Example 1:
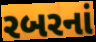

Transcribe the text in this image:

રબરનાં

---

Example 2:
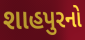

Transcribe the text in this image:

શાહપુરનો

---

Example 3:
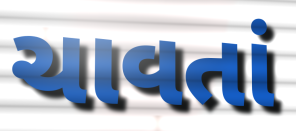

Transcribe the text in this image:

ચાવતાં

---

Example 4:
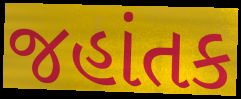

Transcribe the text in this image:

જહાંતક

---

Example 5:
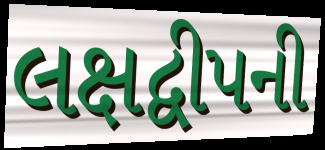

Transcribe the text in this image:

લક્ષદ્વીપની